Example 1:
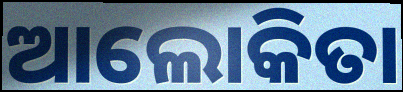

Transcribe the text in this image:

ଆଲୋକିତା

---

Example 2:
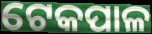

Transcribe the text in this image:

ଟେକପାଳ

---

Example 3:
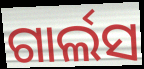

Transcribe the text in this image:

ଗାର୍ଲସ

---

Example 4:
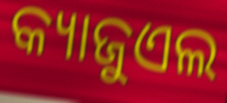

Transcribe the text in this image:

କ୍ୟାଜୁଏଲ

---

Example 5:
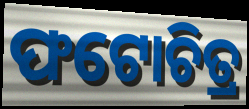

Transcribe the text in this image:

ଫଟୋଚିତ୍ର